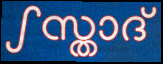
ഽസ്താദ്